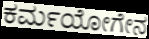
ಕರ್ಮಯೋಗೇನ